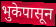
भुकेपासून